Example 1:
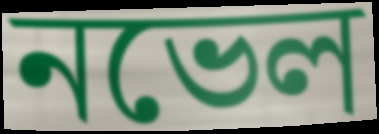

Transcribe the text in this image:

নভেল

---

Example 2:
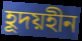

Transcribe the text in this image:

হূদয়হীন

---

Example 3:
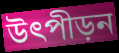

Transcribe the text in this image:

উৎপীড়ন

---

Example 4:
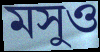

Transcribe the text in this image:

মসুও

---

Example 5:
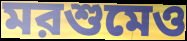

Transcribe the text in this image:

মরশুমেও